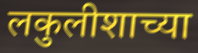
लकुलीशाच्या